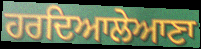
ਹਰਦਿਆਲੇਆਣਾ